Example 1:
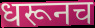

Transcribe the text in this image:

धरूनच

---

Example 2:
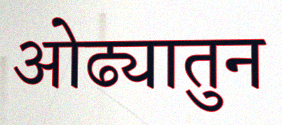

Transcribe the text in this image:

ओढ्यातुन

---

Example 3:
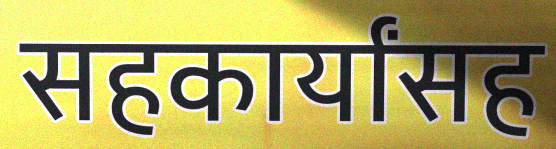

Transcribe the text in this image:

सहकार्यांसह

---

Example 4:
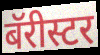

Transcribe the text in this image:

बॅरीस्टर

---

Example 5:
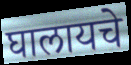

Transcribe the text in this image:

घालायचे